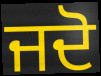
ਜਦੋ